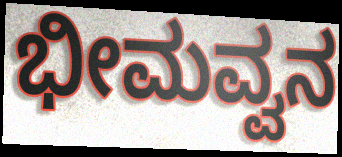
ಭೀಮವ್ವನ